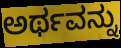
ಅರ್ಥವನ್ನು